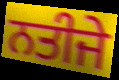
ਨਤੀਜੇ